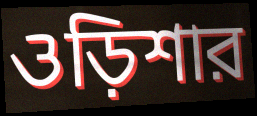
ওড়িশার